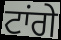
ਟਾਂਗੇ